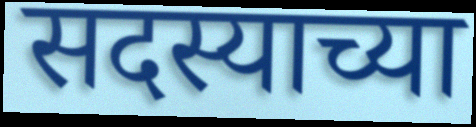
सदस्याच्या